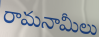
రామనామీలు